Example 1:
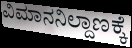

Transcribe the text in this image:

ವಿಮಾನನಿಲ್ದಾಣಕ್ಕೆ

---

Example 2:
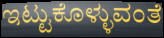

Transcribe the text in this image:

ಇಟ್ಟುಕೊಳ್ಳುವಂತೆ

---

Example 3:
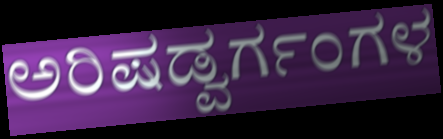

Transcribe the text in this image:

ಅರಿಷಡ್ವರ್ಗಂಗಳ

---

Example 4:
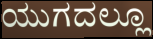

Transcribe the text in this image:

ಯುಗದಲ್ಲೂ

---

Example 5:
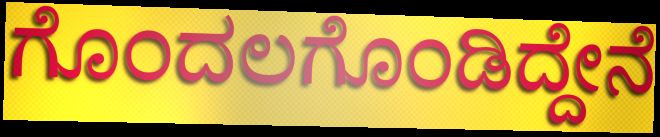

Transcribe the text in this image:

ಗೊಂದಲಗೊಂಡಿದ್ದೇನೆ